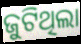
ଜୁଟିଥିଲା